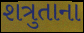
શત્રુતાના